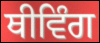
ਥੀਵਿੰਗ